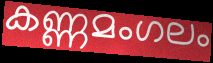
കണ്ണമംഗലം